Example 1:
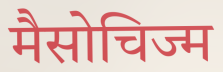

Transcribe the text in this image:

मैसोचिज्म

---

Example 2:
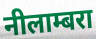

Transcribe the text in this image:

नीलाम्बरा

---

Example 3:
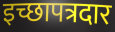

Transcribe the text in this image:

इच्छापत्रदार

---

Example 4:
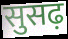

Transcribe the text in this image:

सुसढ़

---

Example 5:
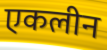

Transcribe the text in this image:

एकलीन